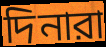
দিনারা